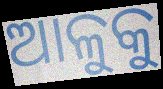
ଆଳୁକୁ